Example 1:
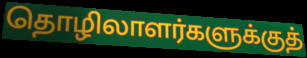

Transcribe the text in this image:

தொழிலாளர்களுக்குத்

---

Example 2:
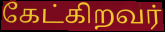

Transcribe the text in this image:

கேட்கிறவர்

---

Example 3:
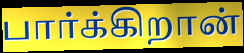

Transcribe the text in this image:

பார்க்கிறான்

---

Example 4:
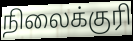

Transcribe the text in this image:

நிலைக்குரி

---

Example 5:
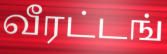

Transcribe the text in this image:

வீரட்டங்